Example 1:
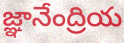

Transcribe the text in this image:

జ్ఞానేంద్రియ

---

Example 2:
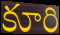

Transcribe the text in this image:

కూరి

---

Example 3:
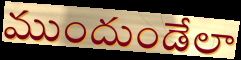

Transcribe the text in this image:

ముందుండేలా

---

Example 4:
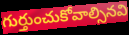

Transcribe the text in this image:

గుర్తుంచుకోవాల్సినవి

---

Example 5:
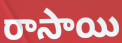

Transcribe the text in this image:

రాసాయి